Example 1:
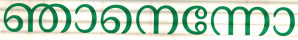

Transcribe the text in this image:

ഞാനെന്നോ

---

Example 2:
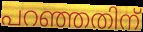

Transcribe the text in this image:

പറഞ്ഞതിന്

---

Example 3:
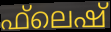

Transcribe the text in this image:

ഫ്‌ലെഷ്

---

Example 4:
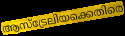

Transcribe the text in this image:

ആസ്ട്രേലിയക്കെതിരെ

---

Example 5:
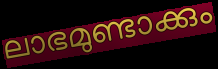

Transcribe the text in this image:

ലാഭമുണ്ടാക്കും